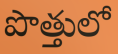
పొత్తులో